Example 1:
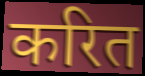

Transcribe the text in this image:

करित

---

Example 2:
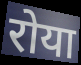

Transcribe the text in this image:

रोया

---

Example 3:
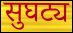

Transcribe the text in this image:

सुघट्य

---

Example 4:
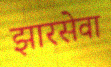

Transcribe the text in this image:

झारसेवा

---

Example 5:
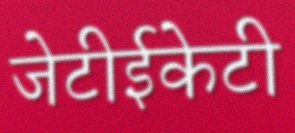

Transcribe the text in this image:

जेटीईकेटी